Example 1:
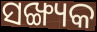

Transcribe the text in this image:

ସଙ୍ଖ୍ୟକ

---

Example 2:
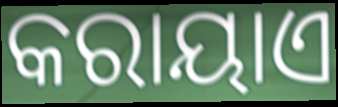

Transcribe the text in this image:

କରାୟାଏ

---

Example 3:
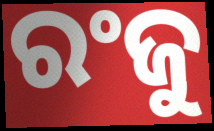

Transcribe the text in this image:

ରଂଜୁ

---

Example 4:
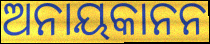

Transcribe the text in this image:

ଅନାୟକାନନ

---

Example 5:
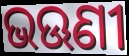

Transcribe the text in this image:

ଭଊଣୀ